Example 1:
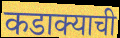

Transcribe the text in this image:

कडाक्याची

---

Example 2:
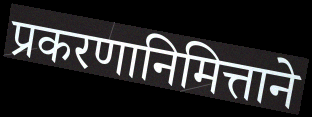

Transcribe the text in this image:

प्रकरणानिमित्ताने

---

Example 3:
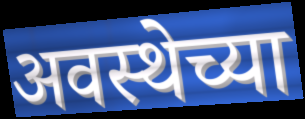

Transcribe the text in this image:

अवस्थेच्या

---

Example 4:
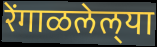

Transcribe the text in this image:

रेंगाळलेल्या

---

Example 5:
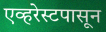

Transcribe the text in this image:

एव्हरेस्टपासून